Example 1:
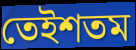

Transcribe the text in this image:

তেইশতম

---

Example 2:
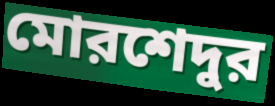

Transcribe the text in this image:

মোরশেদুর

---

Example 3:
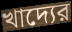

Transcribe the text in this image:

খাদ্যের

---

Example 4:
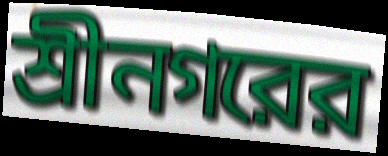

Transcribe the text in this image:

শ্রীনগরের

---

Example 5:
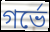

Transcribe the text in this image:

গর্ভে